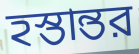
হস্তান্তর